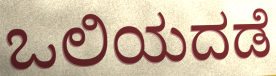
ಒಲಿಯದಡೆ